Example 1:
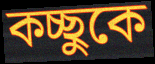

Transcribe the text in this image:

কচ্ছুকে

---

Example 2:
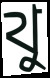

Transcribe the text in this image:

থু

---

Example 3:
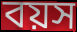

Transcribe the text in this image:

বয়স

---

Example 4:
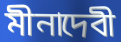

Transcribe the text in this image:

মীনাদেবী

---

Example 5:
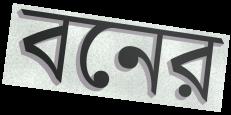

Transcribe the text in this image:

বনের